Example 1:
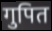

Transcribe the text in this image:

गुपित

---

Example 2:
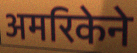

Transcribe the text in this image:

अमरिकेने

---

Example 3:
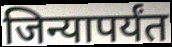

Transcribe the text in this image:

जिन्यापर्यंत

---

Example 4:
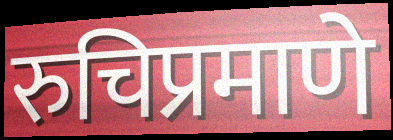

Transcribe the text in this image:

रुचिप्रमाणे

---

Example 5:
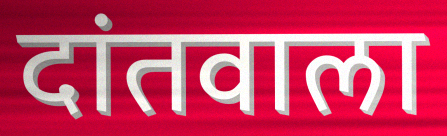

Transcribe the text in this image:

दांतवाला